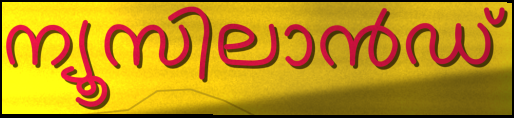
ന്യൂസിലാൻഡ്